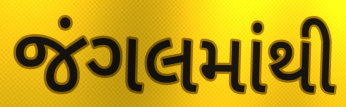
જંગલમાંથી